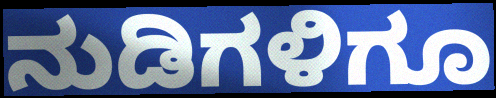
ನುಡಿಗಳಿಗೂ